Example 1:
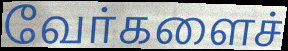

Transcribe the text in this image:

வேர்களைச்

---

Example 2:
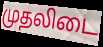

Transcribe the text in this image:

முதலிடை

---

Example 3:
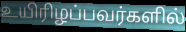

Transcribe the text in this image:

உயிரிழப்பவர்களில்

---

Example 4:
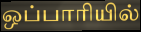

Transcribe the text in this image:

ஒப்பாரியில்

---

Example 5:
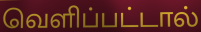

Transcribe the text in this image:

வெளிப்பட்டால்